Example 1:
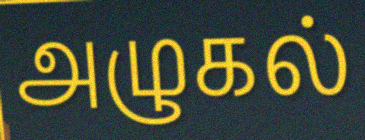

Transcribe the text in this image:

அழுகல்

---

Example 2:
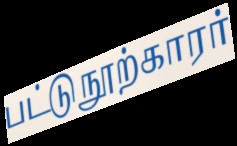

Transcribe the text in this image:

பட்டுநூற்காரர்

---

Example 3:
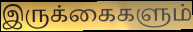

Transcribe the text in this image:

இருக்கைகளும்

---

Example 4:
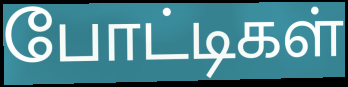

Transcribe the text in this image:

போட்டிகள்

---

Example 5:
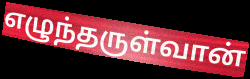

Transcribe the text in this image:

எழுந்தருள்வான்